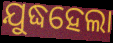
ଯୁଦ୍ଧହେଲା